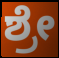
ಶ್ರೇ